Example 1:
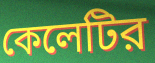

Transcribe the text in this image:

কেলেটির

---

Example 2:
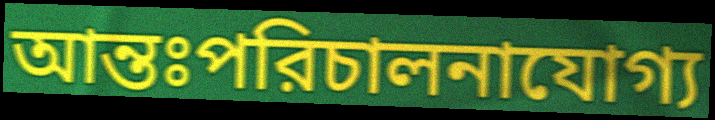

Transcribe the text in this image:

আন্তঃপরিচালনাযোগ্য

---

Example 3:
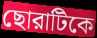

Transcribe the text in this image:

ছোরাটিকে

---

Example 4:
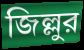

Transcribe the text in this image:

জিল্লুর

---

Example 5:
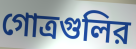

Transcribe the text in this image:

গোত্রগুলির